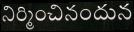
నిర్మించినందున